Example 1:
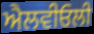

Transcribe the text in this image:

ਐਲਵੀਓਲੀ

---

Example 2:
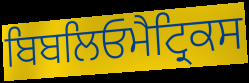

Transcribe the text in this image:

ਬਿਬਲਿਓਮੈਟ੍ਰਿਕਸ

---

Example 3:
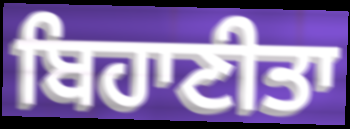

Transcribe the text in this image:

ਬਿਹਾਣੀਤਾ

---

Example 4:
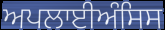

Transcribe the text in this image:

ਅਪਲਾਈਅੰਸਿਸ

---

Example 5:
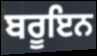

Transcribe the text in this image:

ਬਰੂਇਨ